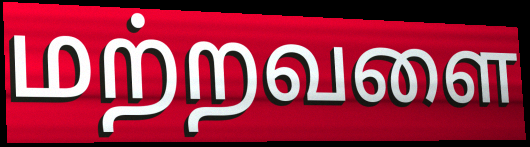
மற்றவளை